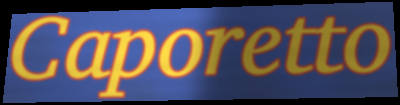
Caporetto